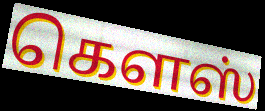
கௌஸ்